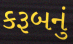
કરૂબનું